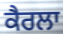
ਕੈਰਲਾ